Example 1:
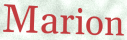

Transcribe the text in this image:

Marion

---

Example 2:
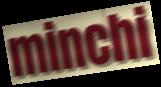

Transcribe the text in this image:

minchi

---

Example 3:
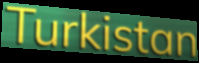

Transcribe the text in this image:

Turkistan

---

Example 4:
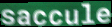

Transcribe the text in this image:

saccule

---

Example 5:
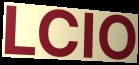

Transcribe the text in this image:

LCIO